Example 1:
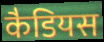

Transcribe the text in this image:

कैडियस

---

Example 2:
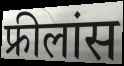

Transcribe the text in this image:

फ्रीलांस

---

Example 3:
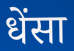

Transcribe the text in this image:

धेंसा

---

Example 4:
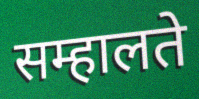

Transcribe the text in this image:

सम्हालते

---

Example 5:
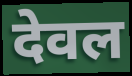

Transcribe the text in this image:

देवल